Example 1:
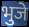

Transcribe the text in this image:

भुजे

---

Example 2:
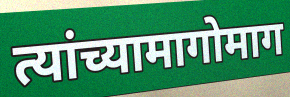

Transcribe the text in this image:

त्यांच्यामागोमाग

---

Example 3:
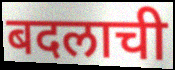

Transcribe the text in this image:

बदलाची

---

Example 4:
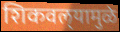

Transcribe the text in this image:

शिकवल्यामुळे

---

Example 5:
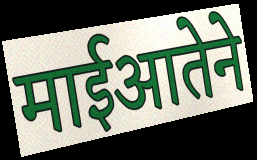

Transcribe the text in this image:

माईआतेने